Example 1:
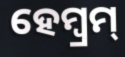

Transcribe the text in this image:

ହେମ୍ବ୍ରମ୍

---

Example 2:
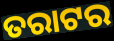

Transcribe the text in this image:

ତରାଟର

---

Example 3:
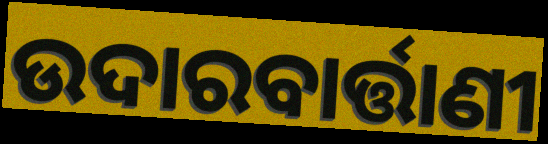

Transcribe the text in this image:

ଉଦାରବାର୍ତ୍ତାଣୀ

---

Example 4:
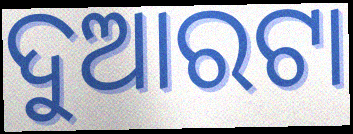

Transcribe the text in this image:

ଦୁଆରଟା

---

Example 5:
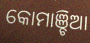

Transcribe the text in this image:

କୋମାଞ୍ଚିଆ